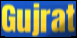
Gujrat